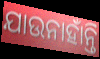
ଯାଉନାହାଁନ୍ତି